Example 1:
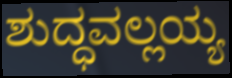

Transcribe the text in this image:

ಶುದ್ಧವಲ್ಲಯ್ಯ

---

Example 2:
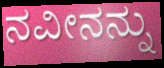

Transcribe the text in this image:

ನವೀನನ್ನು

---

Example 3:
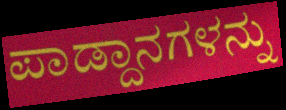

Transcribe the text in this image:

ಪಾಡ್ದಾನಗಳನ್ನು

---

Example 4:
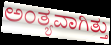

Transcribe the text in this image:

ಅಂತ್ಯವಾಗಿತ್ತು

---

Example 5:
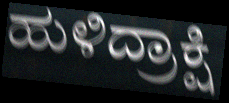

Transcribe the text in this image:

ಹುಳಿದ್ರಾಕ್ಷಿ